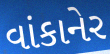
વાંકાનેર